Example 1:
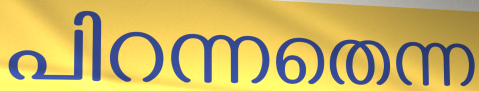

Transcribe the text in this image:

പിറന്നതെന്ന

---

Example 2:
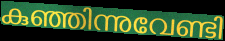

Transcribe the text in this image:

കുഞ്ഞിന്നുവേണ്ടി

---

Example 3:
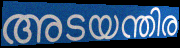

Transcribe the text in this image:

അടയന്തിര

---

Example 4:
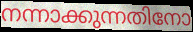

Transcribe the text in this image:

നന്നാക്കുന്നതിനോ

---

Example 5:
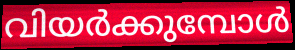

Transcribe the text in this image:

വിയർക്കുമ്പോൾ